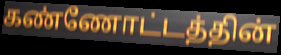
கண்ணோட்டத்தின்